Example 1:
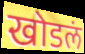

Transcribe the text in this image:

खोडलं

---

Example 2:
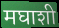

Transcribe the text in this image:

मघाशी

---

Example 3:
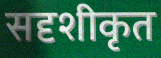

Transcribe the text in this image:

सदृशीकृत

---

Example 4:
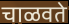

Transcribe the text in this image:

चाळवते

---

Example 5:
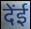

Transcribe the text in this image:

देंई